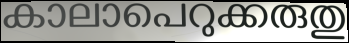
കാലാപെറുക്കരുതു